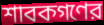
শাবকগণের